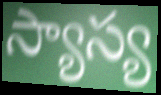
స్యాస్య